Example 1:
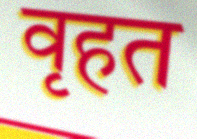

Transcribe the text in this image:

वृहत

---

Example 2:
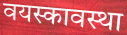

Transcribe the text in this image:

वयस्कावस्था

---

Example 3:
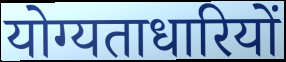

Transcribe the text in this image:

योग्यताधारियों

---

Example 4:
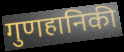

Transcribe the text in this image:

गुणहानिकी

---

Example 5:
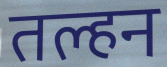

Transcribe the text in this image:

तल्हन